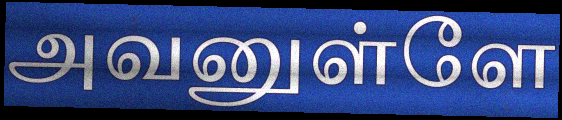
அவனுள்ளே